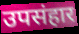
उपसंहार